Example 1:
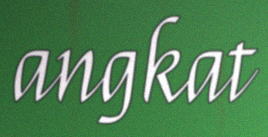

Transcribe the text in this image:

angkat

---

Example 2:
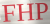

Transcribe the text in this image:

FHP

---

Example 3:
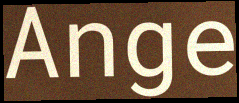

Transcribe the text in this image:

Ange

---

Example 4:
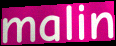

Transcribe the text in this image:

malin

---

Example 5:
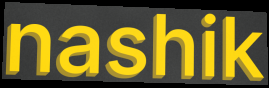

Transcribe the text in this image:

nashik